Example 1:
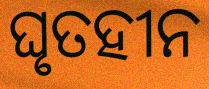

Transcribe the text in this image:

ଘୃତହୀନ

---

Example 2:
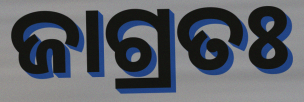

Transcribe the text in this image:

ଜାଗ୍ରତଃ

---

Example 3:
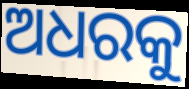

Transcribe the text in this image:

ଅଧରକୁ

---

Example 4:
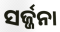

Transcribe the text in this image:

ସର୍ଜ୍ଜନା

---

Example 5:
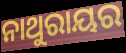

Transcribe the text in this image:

ନାଥୁରାୟର